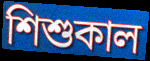
শিশুকাল